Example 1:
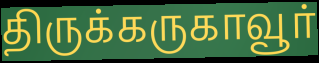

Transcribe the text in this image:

திருக்கருகாவூர்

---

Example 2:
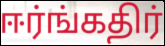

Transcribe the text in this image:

ஈர்ங்கதிர்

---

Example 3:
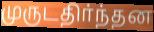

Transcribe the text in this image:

முருடதிர்ந்தன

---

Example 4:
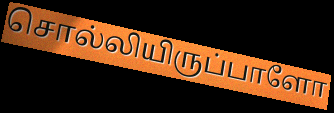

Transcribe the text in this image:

சொல்லியிருப்பாளோ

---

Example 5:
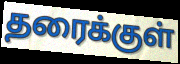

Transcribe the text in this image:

தரைக்குள்